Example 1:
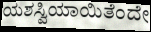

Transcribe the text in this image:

ಯಶಸ್ವಿಯಾಯಿತೆಂದೇ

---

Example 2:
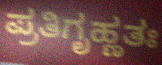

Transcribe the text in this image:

ಪ್ರತಿಗೃಹ್ಣತಃ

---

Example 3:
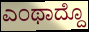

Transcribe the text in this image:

ಎಂಥಾದ್ದೊ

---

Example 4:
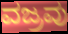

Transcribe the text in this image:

ವಜ್ರವು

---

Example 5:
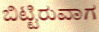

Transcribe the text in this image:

ಬಿಟ್ಟಿರುವಾಗ